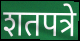
शतपत्रे